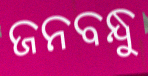
ଜନବନ୍ଧୁ